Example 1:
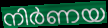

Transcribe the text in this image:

നിർണയ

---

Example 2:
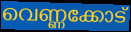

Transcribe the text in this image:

വെണ്ണക്കോട്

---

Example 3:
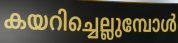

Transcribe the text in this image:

കയറിച്ചെല്ലുമ്പോൾ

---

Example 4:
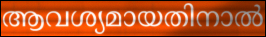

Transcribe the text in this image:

ആവശ്യമായതിനാൽ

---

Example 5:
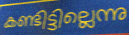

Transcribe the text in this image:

കണ്ടിട്ടില്ലെന്നു